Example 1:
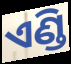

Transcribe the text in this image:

ଏଣ୍ଡି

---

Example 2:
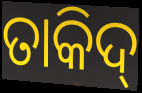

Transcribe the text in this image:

ତାକିଦ୍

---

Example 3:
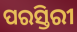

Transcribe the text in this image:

ପରସ୍ତିରୀ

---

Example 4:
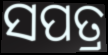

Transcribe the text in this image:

ସପତ୍ର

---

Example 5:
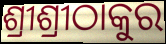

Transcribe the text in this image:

ଶ୍ରୀଶ୍ରୀଠାକୁର